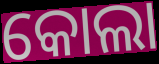
କୋଲା